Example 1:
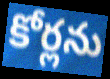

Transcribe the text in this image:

కోర్లను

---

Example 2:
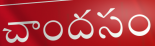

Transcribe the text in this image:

చాందసం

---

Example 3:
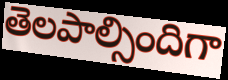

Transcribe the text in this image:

తెలపాల్సిందిగా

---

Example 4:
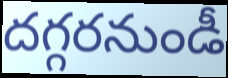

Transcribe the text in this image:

దగ్గరనుండీ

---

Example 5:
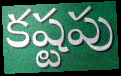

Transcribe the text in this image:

కష్టపు